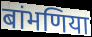
बांभणिया